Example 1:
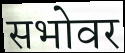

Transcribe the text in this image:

सभोवर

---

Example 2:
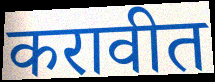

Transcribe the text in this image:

करावीत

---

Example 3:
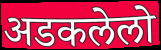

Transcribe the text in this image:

अडकलेलो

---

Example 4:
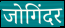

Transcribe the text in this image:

जोगिंदर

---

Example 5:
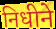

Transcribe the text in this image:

निधीने